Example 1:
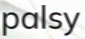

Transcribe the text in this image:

palsy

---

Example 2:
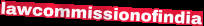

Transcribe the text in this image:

lawcommissionofindia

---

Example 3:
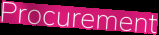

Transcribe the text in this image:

Procurement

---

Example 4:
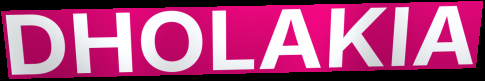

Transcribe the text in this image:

DHOLAKIA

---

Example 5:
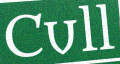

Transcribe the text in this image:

Cull